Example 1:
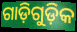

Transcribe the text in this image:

ଗାଡ଼ିଗୁଡ଼ିକ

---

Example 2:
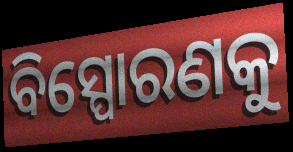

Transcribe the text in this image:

ବିସ୍ପୋରଣକୁ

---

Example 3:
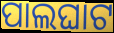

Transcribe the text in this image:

ପାଲଘାଟ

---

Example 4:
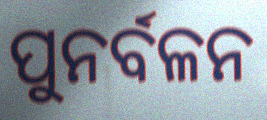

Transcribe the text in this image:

ପୁନର୍ବଳନ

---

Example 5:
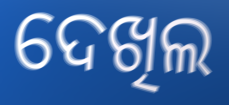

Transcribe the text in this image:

ଦେଖିଲ